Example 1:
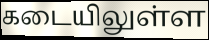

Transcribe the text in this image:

கடையிலுள்ள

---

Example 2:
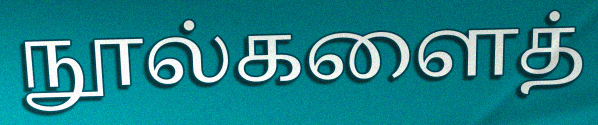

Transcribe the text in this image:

நூல்களைத்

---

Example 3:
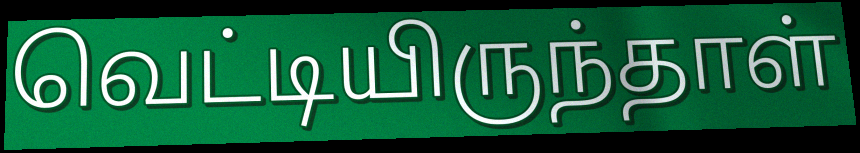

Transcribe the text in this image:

வெட்டியிருந்தாள்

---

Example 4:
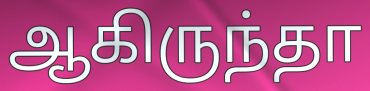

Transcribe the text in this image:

ஆகிருந்தா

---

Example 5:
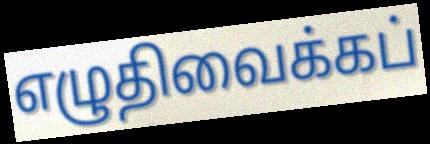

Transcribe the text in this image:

எழுதிவைக்கப்